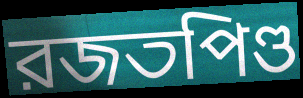
রজতপিণ্ড